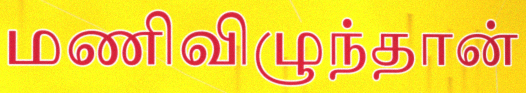
மணிவிழுந்தான்